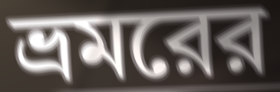
ভ্রমরের